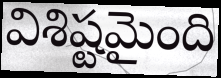
విశిష్టమైంది